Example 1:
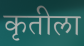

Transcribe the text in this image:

कृतीला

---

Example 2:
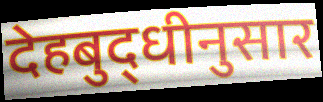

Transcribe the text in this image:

देहबुद्धीनुसार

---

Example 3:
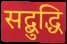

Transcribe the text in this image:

सद्बुद्धि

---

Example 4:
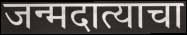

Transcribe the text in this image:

जन्मदात्याचा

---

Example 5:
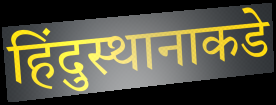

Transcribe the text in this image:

हिंदुस्थानाकडे